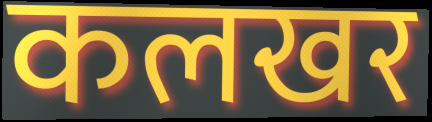
कलखर